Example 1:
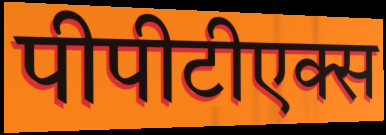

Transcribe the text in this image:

पीपीटीएक्स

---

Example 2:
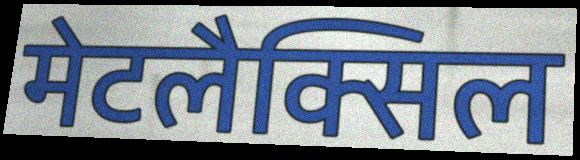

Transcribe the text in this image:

मेटलैक्सिल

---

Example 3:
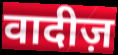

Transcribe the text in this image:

वादीज़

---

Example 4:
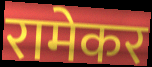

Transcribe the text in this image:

रामेकर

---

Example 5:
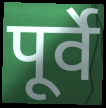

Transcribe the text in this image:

पूर्वे